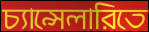
চ্যান্সেলারিতে